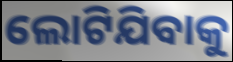
ଲୋଟିଯିବାକୁ